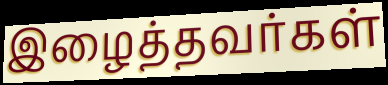
இழைத்தவர்கள்